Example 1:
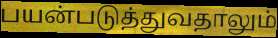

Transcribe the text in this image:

பயன்படுத்துவதாலும்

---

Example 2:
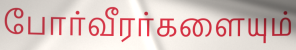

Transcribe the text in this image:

போர்வீரர்களையும்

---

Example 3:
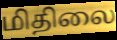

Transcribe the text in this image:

மிதிலை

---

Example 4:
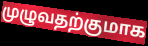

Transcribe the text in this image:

முழுவதற்குமாக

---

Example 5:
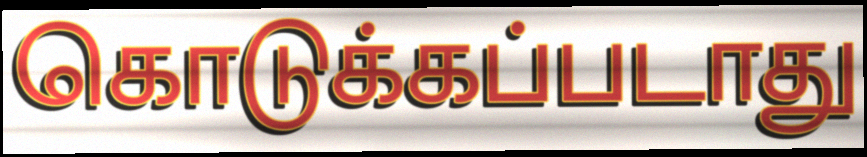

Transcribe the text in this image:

கொடுக்கப்படாது